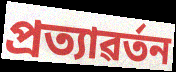
প্ৰত্যাৱৰ্তন